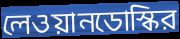
লেওয়ানডোস্কির